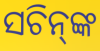
ସଚିନ୍‌ଙ୍କ